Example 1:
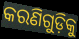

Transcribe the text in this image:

କରଣିଗୁଡ଼ିକୁ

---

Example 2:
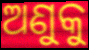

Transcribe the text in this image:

ଅଣୁକୁ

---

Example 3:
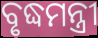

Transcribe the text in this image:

ବୃଦ୍ଧମନ୍ତ୍ରୀ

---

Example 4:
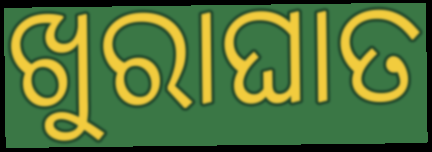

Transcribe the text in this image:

ଖୁରାଘାତ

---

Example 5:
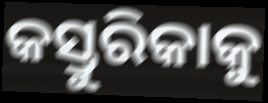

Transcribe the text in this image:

କସ୍ତୁରିକାକୁ